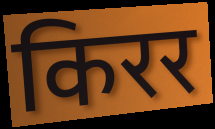
किरर